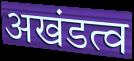
अखंडत्व